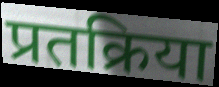
प्रतक्रिया